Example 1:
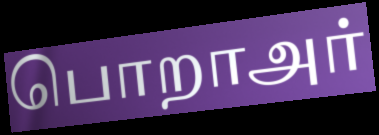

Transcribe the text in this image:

பொறாஅர்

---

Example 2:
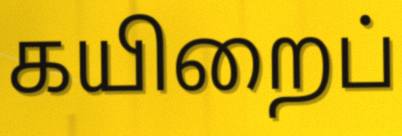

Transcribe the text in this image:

கயிறைப்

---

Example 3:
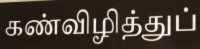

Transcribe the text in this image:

கண்விழித்துப்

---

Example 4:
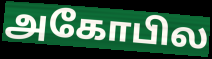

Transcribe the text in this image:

அகோபில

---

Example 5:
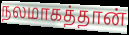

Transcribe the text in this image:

நலமாகத்தான்